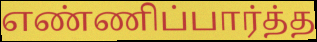
எண்ணிப்பார்த்த